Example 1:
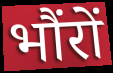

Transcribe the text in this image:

भौंरों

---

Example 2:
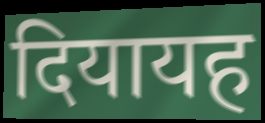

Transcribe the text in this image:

दियायह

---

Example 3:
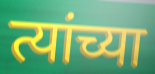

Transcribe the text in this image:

त्यांच्या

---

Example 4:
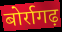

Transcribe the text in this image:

बोर्रागढ़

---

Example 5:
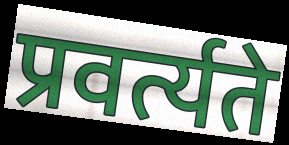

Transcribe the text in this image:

प्रवर्त्यते